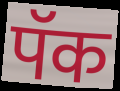
पॅक